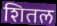
शितल